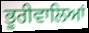
ਭੂਰੀਵਾਲਿਆਂ